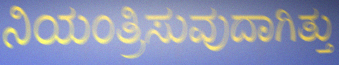
ನಿಯಂತ್ರಿಸುವುದಾಗಿತ್ತು